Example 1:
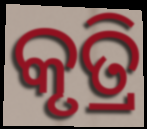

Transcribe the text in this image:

କୃତ୍ରି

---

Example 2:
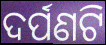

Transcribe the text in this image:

ଦର୍ପଣଟି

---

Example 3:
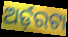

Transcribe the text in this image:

ଅର୍ଡ଼ରଟା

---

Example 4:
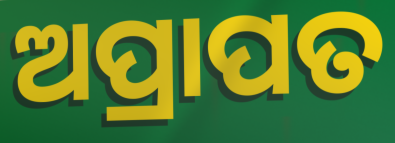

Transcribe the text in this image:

ଅପ୍ରାପତ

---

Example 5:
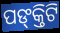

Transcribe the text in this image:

ପଙ୍‌କ୍ତିଟି